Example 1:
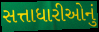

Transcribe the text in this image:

સત્તાધારીઓનું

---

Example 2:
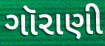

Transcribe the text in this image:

ગૉરાણી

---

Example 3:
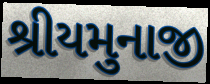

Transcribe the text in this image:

શ્રીયમુનાજી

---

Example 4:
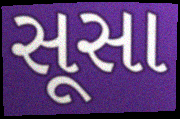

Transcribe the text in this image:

સૂસા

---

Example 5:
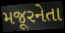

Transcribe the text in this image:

મજૂરનેતા